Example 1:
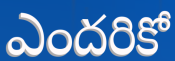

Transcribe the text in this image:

ఎందరికో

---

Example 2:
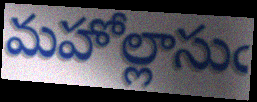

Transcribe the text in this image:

మహోల్లాసుఁ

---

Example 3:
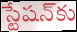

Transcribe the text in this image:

స్టేషన్‍కు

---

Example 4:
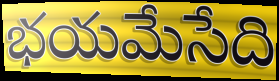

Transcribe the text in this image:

భయమేసేది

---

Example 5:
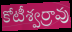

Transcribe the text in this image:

కోటీశ్వర్రావు